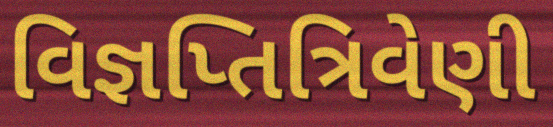
વિજ્ઞપ્તિત્રિવેણી